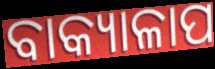
ବାକ୍ୟାଳାପ